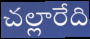
చల్లారేది